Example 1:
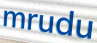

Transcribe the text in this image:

mrudu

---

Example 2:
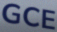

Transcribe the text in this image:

GCE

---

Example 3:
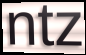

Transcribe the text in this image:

ntz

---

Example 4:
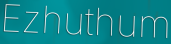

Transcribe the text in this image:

Ezhuthum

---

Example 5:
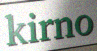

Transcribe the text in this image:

kirno